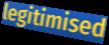
legitimised